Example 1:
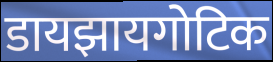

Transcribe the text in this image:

डायझायगोटिक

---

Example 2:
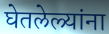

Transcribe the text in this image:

घेतलेल्यांना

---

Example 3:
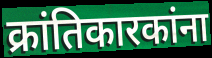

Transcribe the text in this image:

क्रांतिकारकांना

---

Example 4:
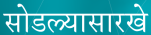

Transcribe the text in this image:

सोडल्यासारखे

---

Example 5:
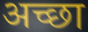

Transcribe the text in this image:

अच्छा